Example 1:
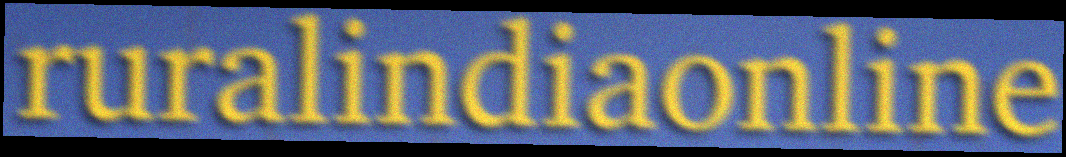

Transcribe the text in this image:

ruralindiaonline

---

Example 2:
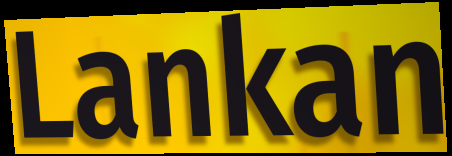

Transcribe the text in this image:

Lankan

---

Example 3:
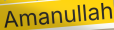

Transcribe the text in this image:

Amanullah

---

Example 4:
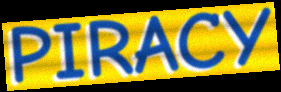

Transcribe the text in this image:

PIRACY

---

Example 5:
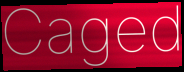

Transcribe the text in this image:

Caged